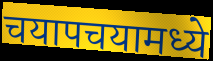
चयापचयामध्ये